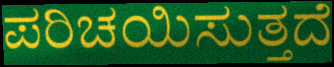
ಪರಿಚಯಿಸುತ್ತದೆ